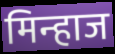
मिन्हाज